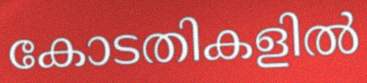
കോടതികളിൽ